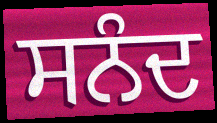
ਸਨੰਦ